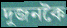
দুজনকৈ